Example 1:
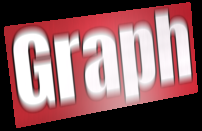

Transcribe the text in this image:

Graph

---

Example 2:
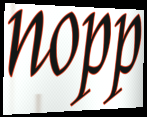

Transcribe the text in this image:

nopp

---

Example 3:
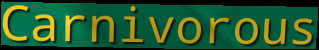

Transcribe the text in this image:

Carnivorous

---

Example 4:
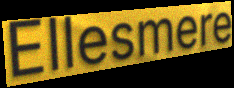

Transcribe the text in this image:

Ellesmere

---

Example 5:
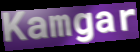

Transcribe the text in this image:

Kamgar